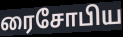
ரைசோபிய